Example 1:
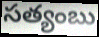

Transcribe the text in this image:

సత్యంబు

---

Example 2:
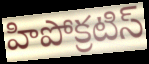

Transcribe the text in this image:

హిపోక్రటిస్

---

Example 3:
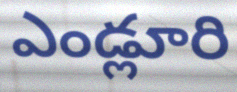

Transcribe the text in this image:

ఎండ్లూరి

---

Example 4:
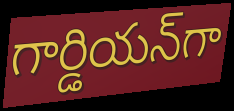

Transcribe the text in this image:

గార్డియన్‌గా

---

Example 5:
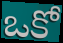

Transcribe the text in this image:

ఒకో